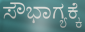
ಸೌಭಾಗ್ಯಕ್ಕೆ